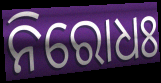
ନିରୋଧଃ